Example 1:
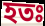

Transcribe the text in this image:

হতঃ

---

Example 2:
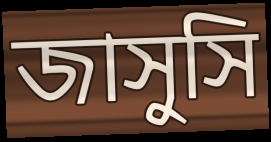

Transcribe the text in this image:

জাসুসি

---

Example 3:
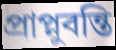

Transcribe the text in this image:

প্রাপ্নুবন্তি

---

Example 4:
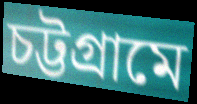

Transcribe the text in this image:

চট্টগ্রামে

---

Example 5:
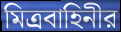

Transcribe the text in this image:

মিত্রবাহিনীর